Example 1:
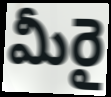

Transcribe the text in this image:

మీరై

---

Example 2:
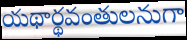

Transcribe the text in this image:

యథార్థవంతులనుగా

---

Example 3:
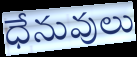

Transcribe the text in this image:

ధేనువులు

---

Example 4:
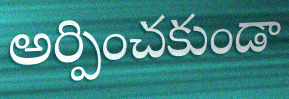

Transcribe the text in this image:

అర్పించకుండా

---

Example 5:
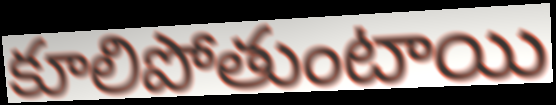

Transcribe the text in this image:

కూలిపోతుంటాయి